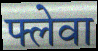
फ्लेवा